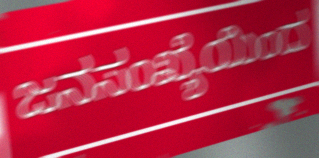
ಜನಸಂಖ್ಯೆಯಿಂದ